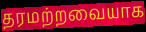
தரமற்றவையாக